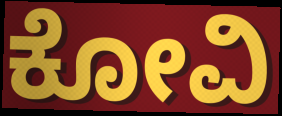
ಕೋವಿ